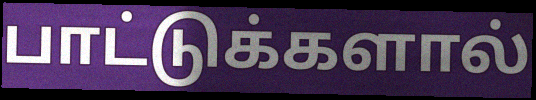
பாட்டுக்களால்